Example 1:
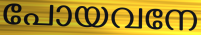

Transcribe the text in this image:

പോയവനേ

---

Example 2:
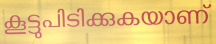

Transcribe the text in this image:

കൂട്ടുപിടിക്കുകയാണ്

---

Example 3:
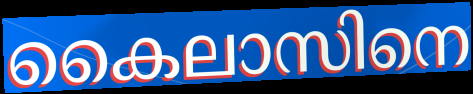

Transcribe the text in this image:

കൈലാസിനെ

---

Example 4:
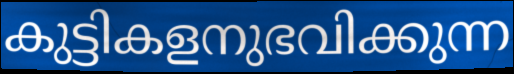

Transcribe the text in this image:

കുട്ടികളനുഭവിക്കുന്ന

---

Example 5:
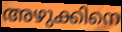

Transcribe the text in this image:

അഴുക്കിനെ